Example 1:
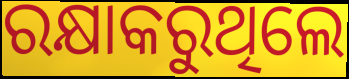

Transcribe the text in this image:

ରକ୍ଷାକରୁଥିଲେ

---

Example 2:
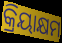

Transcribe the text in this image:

କ୍ରିୟାକ୍ଷମ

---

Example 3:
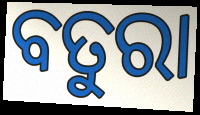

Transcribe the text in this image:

ବତୁରା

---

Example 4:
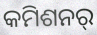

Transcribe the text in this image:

କମିଶନର୍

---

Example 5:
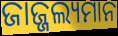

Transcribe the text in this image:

ଜାଜ୍ଜଲ୍ୟମାନ